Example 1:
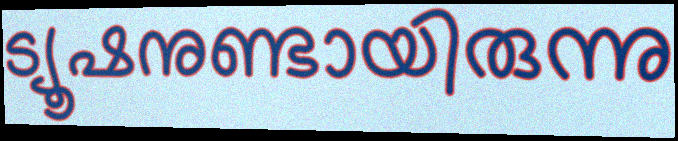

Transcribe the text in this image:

ട്യൂഷനുണ്ടായിരുന്നു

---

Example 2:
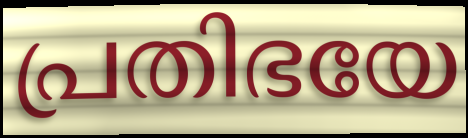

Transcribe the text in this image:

പ്രതിഭയേ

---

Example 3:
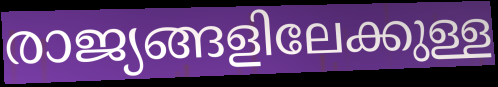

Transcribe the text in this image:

രാജ്യങ്ങളിലേക്കുള്ള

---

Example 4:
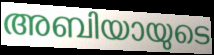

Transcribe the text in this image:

അബിയായുടെ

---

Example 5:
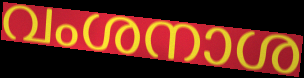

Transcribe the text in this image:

വംശനാശ